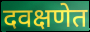
दवक्षणेत